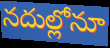
నదుల్లోనూ